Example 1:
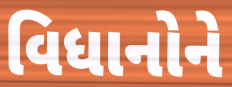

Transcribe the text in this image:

વિધાનોને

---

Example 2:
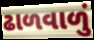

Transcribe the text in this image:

ઢાળવાળું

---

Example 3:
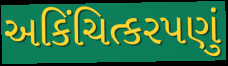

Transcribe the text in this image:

અકિંચિત્કરપણું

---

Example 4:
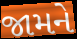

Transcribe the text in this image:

જામને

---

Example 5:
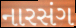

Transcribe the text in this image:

નારસંગ